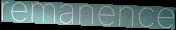
remanence